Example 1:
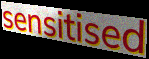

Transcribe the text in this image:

sensitised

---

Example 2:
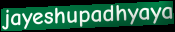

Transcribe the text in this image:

jayeshupadhyaya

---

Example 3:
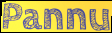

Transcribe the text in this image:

Pannu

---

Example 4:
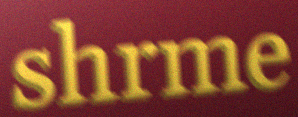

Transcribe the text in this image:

shrme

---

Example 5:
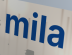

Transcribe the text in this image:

mila